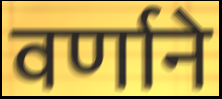
वर्णाने